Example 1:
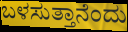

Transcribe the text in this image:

ಬಳಸುತ್ತಾನೆಂದು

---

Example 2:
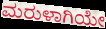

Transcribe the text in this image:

ಮರುಳಾಗಿಯೇ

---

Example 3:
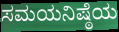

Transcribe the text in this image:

ಸಮಯನಿಷ್ಠೆಯ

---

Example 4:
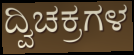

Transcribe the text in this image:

ದ್ವಿಚಕ್ರಗಳ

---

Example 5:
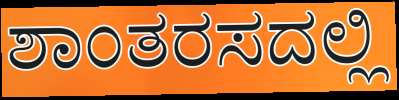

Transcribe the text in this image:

ಶಾಂತರಸದಲ್ಲಿ